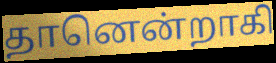
தானென்றாகி